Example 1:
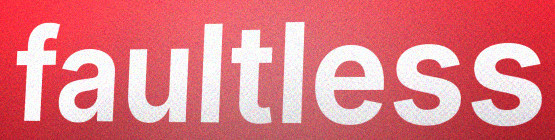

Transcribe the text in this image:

faultless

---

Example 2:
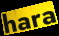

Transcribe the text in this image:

hara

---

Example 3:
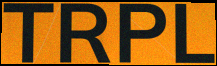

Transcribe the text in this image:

TRPL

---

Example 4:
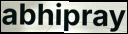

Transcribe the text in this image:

abhipray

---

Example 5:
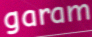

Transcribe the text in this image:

garam